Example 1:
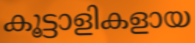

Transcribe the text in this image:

കൂട്ടാളികളായ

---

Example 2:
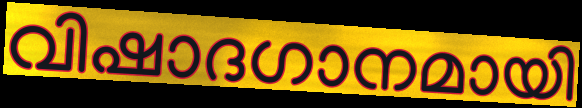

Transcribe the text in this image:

വിഷാദഗാനമായി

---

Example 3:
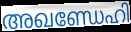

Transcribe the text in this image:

അഖണ്ഡേഹി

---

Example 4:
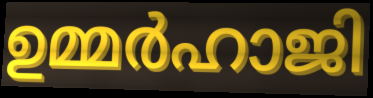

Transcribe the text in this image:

ഉമ്മർഹാജി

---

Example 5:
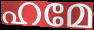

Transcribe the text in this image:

ഹമേ